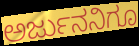
ಅರ್ಜುನನಿಗೂ